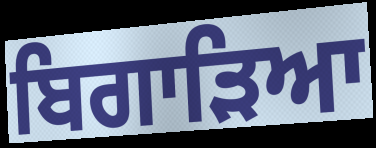
ਬਿਗਾੜਿਆ